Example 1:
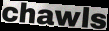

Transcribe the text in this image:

chawls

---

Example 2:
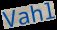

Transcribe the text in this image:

Vahl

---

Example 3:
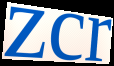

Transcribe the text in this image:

zcr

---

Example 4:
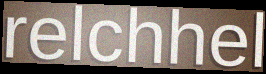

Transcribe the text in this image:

relchhel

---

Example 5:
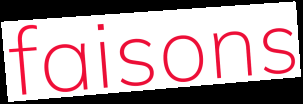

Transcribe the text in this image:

faisons